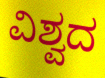
ವಿಶ್ವದ